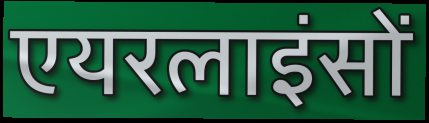
एयरलाइंसों